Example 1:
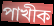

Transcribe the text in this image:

পাখীক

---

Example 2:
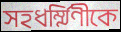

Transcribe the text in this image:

সহধর্ম্মিণীকে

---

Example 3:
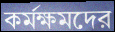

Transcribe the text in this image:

কর্মক্ষমদের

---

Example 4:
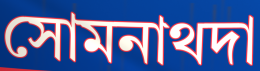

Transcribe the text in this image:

সোমনাথদা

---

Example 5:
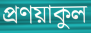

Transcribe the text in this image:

প্রণয়াকুল